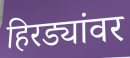
हिरड्यांवर